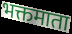
भक्तमाता